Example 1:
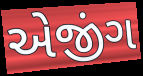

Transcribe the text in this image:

એજીંગ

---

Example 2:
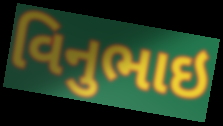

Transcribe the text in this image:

વિનુભાઇ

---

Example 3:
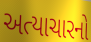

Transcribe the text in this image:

અત્યાચારનો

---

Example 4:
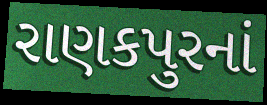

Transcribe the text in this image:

રાણકપુરનાં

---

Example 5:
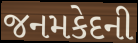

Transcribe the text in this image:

જનમકેદની